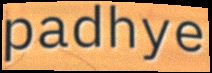
padhye